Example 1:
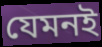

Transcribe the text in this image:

যেমনই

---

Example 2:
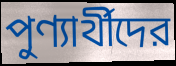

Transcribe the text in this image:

পুণ্যার্থীদের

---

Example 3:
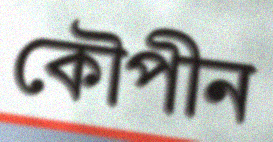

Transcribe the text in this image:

কৌপীন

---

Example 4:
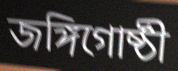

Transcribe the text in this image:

জঙ্গিগোষ্ঠী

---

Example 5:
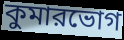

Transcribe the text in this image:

কুমারভোগ